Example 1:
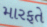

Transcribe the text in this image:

મારફતે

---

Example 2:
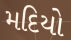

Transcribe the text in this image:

મદિયો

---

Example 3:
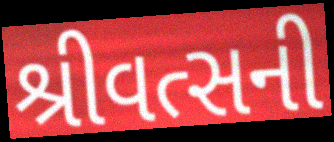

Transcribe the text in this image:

શ્રીવત્સની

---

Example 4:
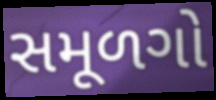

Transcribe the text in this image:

સમૂળગો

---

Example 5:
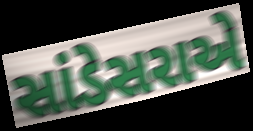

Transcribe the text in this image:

સાંડેસરાએ